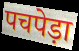
पचपेड़ा